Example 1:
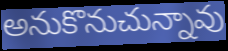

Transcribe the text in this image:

అనుకొనుచున్నావు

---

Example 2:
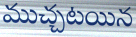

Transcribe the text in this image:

ముచ్చటయిన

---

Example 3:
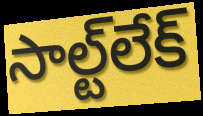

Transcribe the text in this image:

సాల్ట్‌లేక్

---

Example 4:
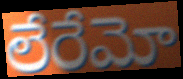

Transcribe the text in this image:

లేరేమో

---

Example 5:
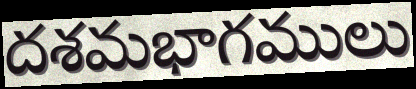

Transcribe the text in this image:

దశమభాగములు